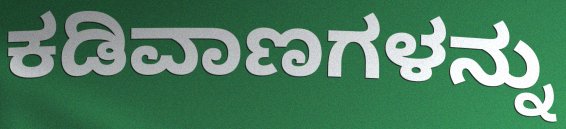
ಕಡಿವಾಣಗಳನ್ನು